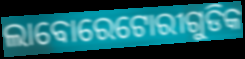
ଲାବୋରେଟୋରୀଗୁଡିକ